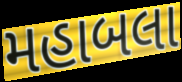
મહાબલા